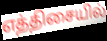
எத்திசையில்